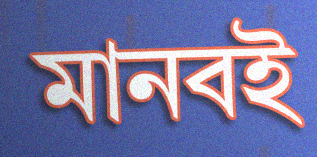
মানবই